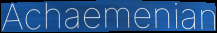
Achaemenian